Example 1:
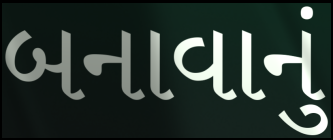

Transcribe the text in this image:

બનાવાનું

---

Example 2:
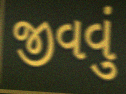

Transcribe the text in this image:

જીવવું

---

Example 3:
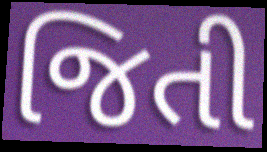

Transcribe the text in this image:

જિતી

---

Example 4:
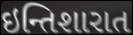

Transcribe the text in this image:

ઇન્તિશારાત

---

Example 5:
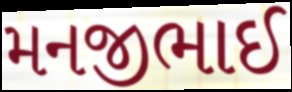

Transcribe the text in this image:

મનજીભાઈ